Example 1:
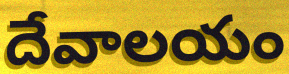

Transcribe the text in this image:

దేవాలయం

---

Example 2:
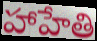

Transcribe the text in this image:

హాహేతి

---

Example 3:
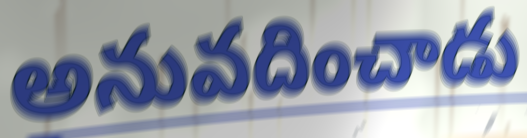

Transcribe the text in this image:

అనువదించాడు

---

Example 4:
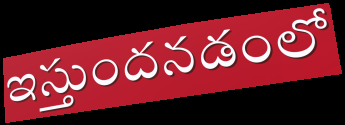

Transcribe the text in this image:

ఇస్తుందనడంలో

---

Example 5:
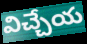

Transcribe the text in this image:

విచ్చేయ